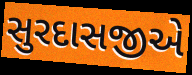
સુરદાસજીએ